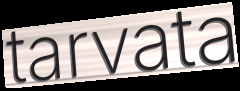
tarvata